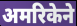
अमरिकेने